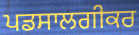
ਪਡਸਾਲਗੀਕਰ